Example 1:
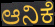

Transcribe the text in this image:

ಆನಿಕೆ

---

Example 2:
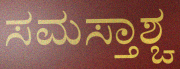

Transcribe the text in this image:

ಸಮಸ್ತಾಶ್ಚ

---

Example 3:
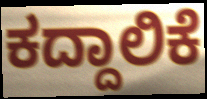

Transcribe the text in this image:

ಕದ್ದಾಲಿಕೆ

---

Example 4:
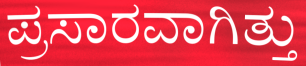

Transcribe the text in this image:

ಪ್ರಸಾರವಾಗಿತ್ತು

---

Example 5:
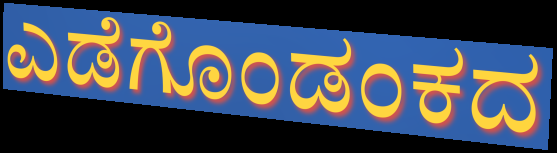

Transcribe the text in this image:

ಎಡೆಗೊಂಡಂಕದ